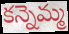
కన్నెమ్మ